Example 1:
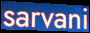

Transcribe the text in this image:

sarvani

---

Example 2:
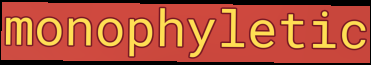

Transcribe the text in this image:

monophyletic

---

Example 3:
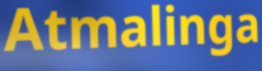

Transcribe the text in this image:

Atmalinga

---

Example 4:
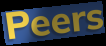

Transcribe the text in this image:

Peers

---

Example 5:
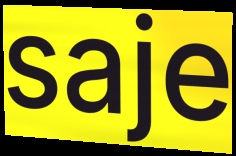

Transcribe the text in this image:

saje